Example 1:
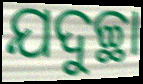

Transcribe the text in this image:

ଯଦୁଚ୍ଛା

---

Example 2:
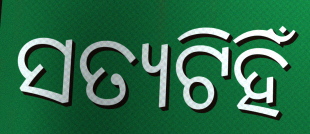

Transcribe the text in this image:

ସତ୍ୟଟିହିଁ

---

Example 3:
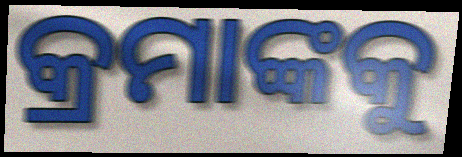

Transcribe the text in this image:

କ୍ରମାଙ୍କକୁ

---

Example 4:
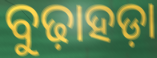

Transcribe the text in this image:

ବୁଢ଼ାହଡ଼ା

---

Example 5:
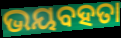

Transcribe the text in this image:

ଭୟବହତା